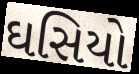
ઘસિયો